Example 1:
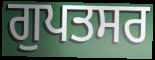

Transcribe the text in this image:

ਗੁਪਤਸਰ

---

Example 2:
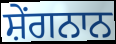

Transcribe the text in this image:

ਸ਼ੇਂਗਨਾਨ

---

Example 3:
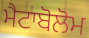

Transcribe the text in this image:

ਮੈਟਾਬੋਲੋਮ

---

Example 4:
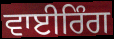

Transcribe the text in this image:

ਵਾਈਰਿੰਗ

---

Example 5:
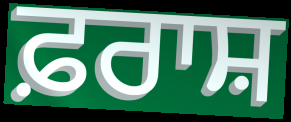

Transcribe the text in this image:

ਫ਼ਰਾਸ਼